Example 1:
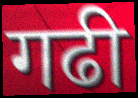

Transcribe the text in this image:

गढी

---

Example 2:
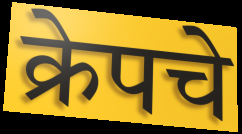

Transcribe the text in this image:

क्रेपचे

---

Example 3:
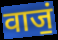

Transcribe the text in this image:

वाजं॒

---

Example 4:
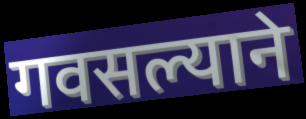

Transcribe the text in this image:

गवसल्याने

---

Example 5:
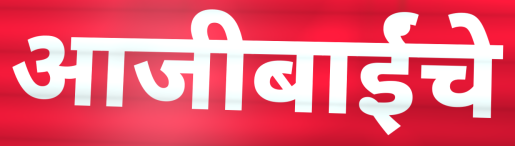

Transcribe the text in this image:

आजीबाईंचे